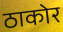
ठाकोर